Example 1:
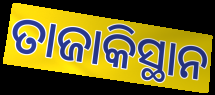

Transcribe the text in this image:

ତାଜାକିସ୍ଥାନ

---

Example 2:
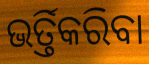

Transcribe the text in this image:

ଭର୍ତ୍ତିକରିବା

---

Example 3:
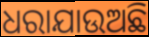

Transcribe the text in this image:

ଧରାଯାଉଅଛି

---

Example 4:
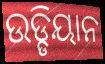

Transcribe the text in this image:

ଉଡ୍ଡିୟାନ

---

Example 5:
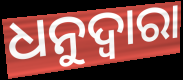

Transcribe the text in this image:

ଧନୁଦ୍ୱାରା